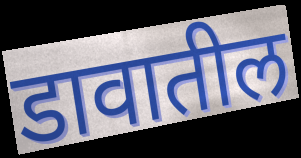
डावातील